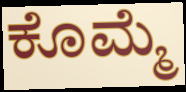
ಕೊಮ್ಮೆ